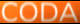
CODA